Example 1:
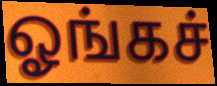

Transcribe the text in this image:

ஓங்கச்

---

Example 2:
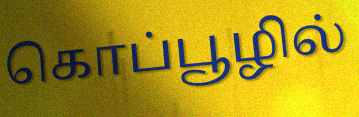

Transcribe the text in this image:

கொப்பூழில்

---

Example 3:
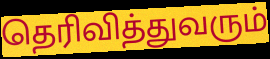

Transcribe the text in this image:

தெரிவித்துவரும்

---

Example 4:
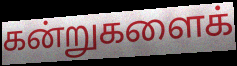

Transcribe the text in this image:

கன்றுகளைக்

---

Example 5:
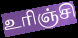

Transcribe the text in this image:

உரிஞ்சி